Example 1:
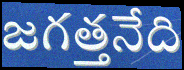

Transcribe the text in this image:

జగత్తనేది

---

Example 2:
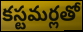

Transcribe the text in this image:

కస్టమర్లతో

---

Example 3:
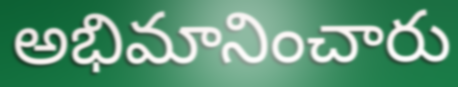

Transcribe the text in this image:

అభిమానించారు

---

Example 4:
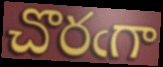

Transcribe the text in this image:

చొరఁగా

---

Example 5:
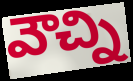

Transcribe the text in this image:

వౌచ్ని